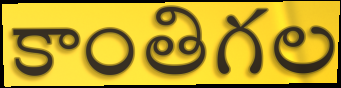
కాంతిగల